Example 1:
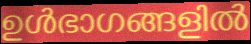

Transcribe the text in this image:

ഉൾഭാഗങ്ങളിൽ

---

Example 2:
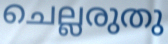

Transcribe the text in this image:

ചെല്ലരുതു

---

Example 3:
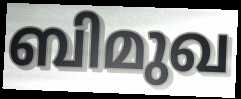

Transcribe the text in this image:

ബിമുഖ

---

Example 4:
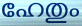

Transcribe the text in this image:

ഹേതും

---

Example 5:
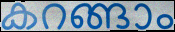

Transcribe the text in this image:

കറങ്ങാം